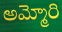
అమ్మోరి